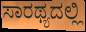
ಸಾರಥ್ಯದಲ್ಲಿ